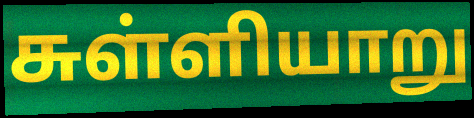
சுள்ளியாறு